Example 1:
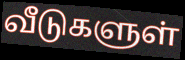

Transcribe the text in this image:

வீடுகளுள்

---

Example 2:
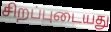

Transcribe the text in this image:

சிறப்புடையது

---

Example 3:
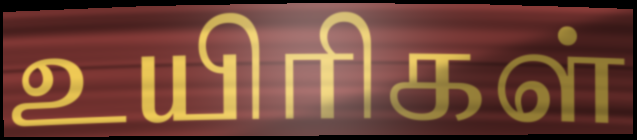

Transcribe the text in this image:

உயிரிகள்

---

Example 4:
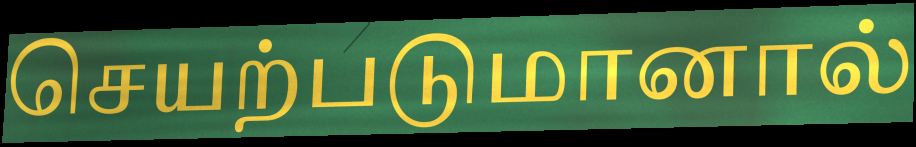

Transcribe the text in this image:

செயற்படுமானால்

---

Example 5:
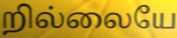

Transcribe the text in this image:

றில்லையே